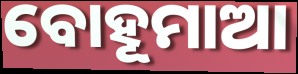
ବୋହୂମାଆ